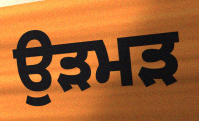
ਉੜਮੜ